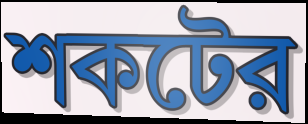
শকটের